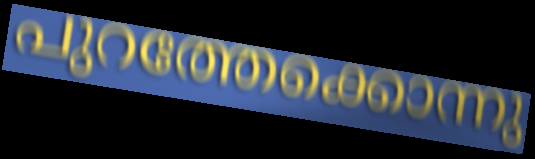
പുറത്തേക്കൊന്നു